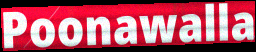
Poonawalla